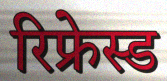
रिफ्रेस्ड